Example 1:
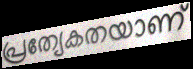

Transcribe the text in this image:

പ്രത്യേകതയാണ്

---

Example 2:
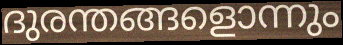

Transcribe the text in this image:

ദുരന്തങ്ങളൊന്നും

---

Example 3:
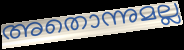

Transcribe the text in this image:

അതൊന്നുമല്ല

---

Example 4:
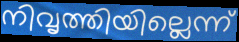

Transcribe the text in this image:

നിവൃത്തിയില്ലെന്ന്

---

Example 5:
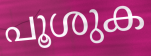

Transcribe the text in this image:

പൂശുക